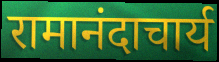
रामानंदाचार्य